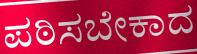
ಪಠಿಸಬೇಕಾದ